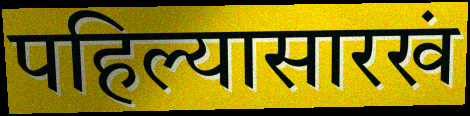
पहिल्यासारखं